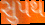
સુપથ